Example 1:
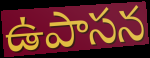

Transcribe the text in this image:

ఉపాసన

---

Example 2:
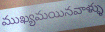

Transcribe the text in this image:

ముఖ్యమయినవాళ్ళు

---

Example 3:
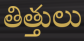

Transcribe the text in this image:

తిత్తులు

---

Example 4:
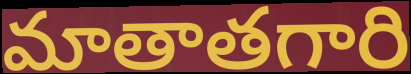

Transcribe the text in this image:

మాతాతగారి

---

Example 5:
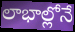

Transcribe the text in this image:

లాభాల్లోనే